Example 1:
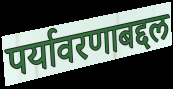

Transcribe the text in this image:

पर्यावरणाबद्दल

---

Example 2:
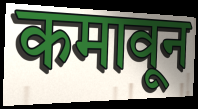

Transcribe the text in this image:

कमावून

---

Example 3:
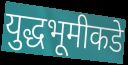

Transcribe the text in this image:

युद्धभूमीकडे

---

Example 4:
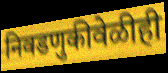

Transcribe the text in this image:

निवडणुकीवेळीही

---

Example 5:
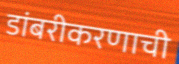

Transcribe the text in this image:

डांबरीकरणाची